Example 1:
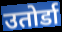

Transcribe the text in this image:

उतोर्डा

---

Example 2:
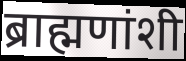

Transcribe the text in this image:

ब्राह्मणांशी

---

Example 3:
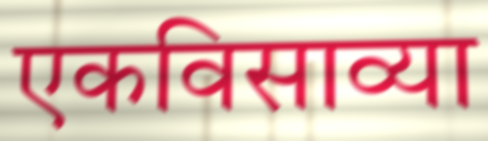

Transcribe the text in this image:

एकविसाव्या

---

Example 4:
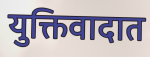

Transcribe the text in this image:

युक्तिवादात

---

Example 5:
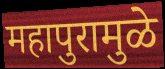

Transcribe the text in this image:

महापुरामुळे